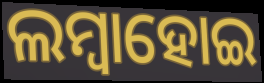
ଲମ୍ୱାହୋଇ